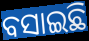
ବସାଇଛି